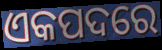
ଏକପଦରେ